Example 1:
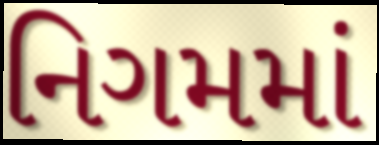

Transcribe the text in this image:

નિગમમાં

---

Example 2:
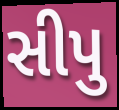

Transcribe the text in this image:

સીપુ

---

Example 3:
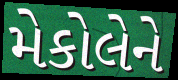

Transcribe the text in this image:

મેકોલેને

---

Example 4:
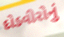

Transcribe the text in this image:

દોડવીરોનું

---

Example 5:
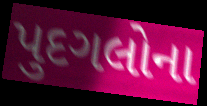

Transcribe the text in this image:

પુદગલોના